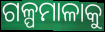
ଗଳ୍ପମାଳାକୁ